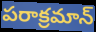
పరాక్రమాన్